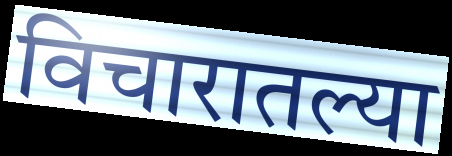
विचारातल्या